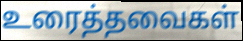
உரைத்தவைகள்